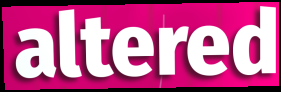
altered